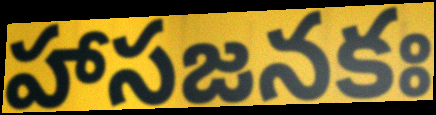
హాసజనకః